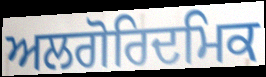
ਅਲਗੋਰਿਦਮਿਕ